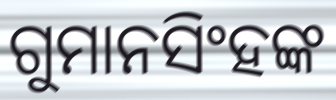
ଗୁମାନସିଂହଙ୍କ